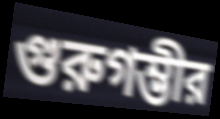
গুরুগম্ভীর